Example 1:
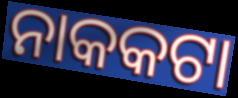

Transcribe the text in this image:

ନାକକଟା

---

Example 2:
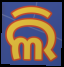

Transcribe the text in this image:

ଲି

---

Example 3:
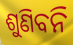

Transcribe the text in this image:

ଶୁଣିବନି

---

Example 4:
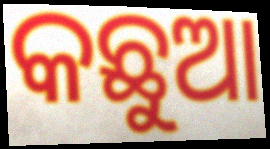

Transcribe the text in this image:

କଛୁଆ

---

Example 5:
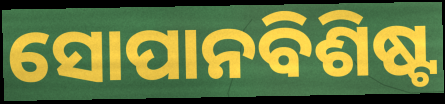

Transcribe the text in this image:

ସୋପାନବିଶିଷ୍ଟ